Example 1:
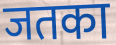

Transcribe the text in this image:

जतका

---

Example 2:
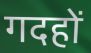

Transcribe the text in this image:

गदहों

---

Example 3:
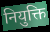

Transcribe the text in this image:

नियुक्ति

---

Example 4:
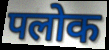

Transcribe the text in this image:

पलोक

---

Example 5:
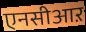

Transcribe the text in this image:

एनसीआऱ